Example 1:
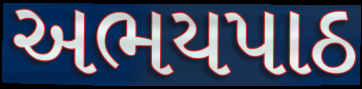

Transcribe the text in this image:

અભયપાઠ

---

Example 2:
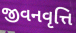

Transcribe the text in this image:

જીવનવૃત્તિ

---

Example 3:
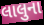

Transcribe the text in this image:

લાલુના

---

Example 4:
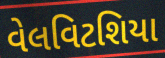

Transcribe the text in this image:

વેલવિટશિયા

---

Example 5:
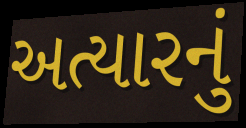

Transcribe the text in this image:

અત્યારનું